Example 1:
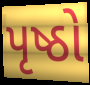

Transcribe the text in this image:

પૃષ્ઠો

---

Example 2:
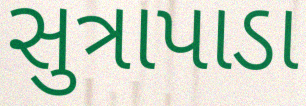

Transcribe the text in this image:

સુત્રાપાડા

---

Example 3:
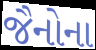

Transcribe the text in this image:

જૈનોના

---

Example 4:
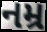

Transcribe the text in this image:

નમ્ર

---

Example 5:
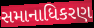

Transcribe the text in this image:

સમાનાધિકરણ